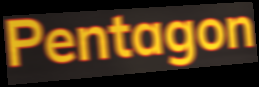
Pentagon